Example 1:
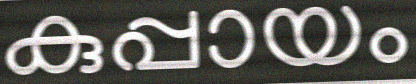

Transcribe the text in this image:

കുപ്പായം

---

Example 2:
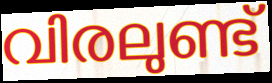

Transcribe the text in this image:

വിരലുണ്ട്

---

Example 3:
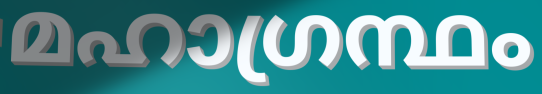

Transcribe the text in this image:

മഹാഗ്രന്ഥം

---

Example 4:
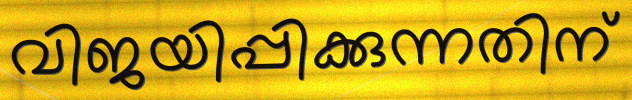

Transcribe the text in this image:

വിജയിപ്പിക്കുന്നതിന്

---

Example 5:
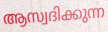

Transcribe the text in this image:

ആസ്വദിക്കുന്ന